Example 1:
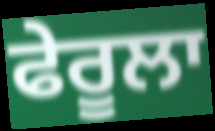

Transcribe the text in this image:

ਫੇਰੂਲਾ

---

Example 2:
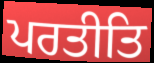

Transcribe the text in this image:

ਪਰਤੀਤਿ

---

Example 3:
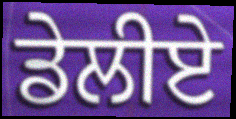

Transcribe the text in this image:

ਡੇਲੀਏ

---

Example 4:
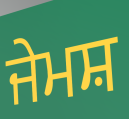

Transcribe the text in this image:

ਜੇਮਸ਼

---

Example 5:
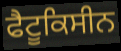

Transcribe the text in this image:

ਫੈਟੂਕਿਸੀਨ